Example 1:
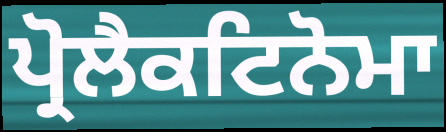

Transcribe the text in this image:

ਪ੍ਰੋਲੈਕਟਿਨੋਮਾ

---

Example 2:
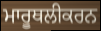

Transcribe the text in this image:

ਮਾਰੂਥਲੀਕਰਨ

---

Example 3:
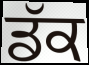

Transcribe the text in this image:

ਡੱਕ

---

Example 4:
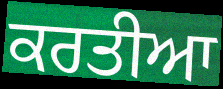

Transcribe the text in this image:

ਕਰਤੀਆ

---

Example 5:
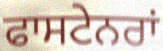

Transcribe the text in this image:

ਫਾਸਟੇਨਰਾਂ